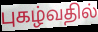
புகழ்வதில்